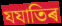
যযাতিৰ